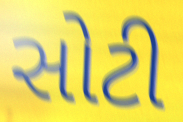
સોટી